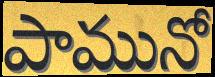
పామునో